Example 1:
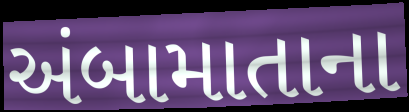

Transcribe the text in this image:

અંબામાતાના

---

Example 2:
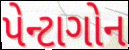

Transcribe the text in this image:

પેન્ટાગોન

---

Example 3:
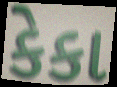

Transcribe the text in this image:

કેકા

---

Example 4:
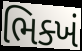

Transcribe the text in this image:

ભિક્ખં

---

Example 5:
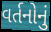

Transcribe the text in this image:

વર્તનોનું